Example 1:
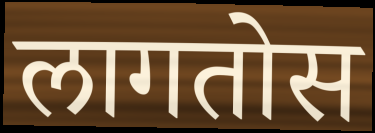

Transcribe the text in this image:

लागतोस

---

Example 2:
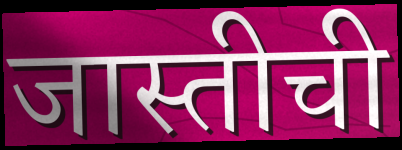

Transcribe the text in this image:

जास्तीची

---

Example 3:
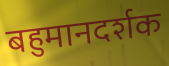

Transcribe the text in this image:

बहुमानदर्शक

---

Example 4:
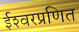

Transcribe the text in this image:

ईश्वरप्रणित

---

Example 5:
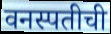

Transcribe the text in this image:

वनस्पतीची